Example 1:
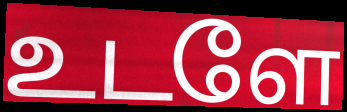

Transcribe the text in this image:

உடளே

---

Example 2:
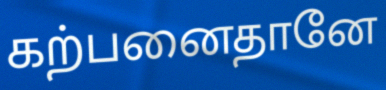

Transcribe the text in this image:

கற்பனைதானே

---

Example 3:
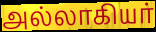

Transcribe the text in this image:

அல்லாகியர்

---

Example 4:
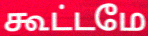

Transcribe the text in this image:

கூட்டமே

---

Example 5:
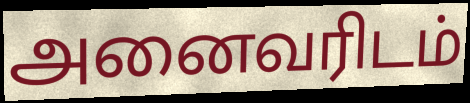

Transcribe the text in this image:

அனைவரிடம்